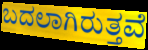
ಬದಲಾಗಿರುತ್ತವೆ